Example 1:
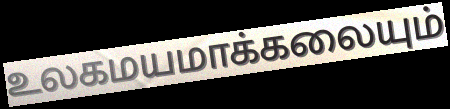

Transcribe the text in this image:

உலகமயமாக்கலையும்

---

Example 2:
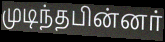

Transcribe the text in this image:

முடிந்தபின்னர்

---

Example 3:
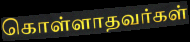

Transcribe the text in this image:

கொள்ளாதவர்கள்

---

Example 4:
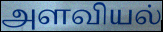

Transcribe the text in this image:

அளவியல்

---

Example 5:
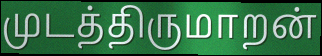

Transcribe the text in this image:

முடத்திருமாறன்